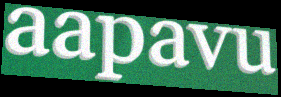
aapavu